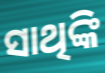
ସାଥିଙ୍କି